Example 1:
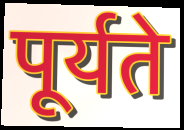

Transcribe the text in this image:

पूर्यते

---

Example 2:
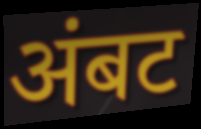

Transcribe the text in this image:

अंबट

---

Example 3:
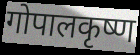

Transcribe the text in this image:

गोपालकृष्ण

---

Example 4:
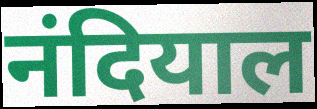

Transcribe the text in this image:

नंदियाल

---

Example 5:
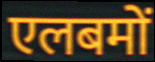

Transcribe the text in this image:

एलबमों